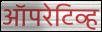
ऑपरेटिव्ह